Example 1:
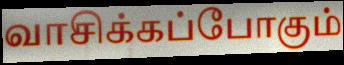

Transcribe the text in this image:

வாசிக்கப்போகும்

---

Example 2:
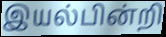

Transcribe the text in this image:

இயல்பின்றி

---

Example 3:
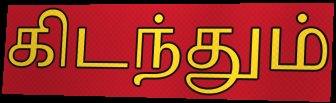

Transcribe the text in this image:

கிடந்தும்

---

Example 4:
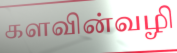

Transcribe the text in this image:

களவின்வழி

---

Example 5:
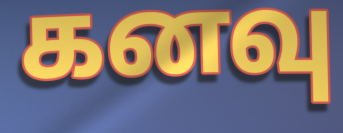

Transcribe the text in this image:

கனவு